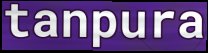
tanpura